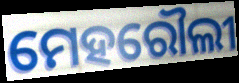
ମେହରୌଲୀ